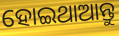
ହୋଇଥାଆନ୍ତୁ